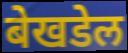
बेखडेल